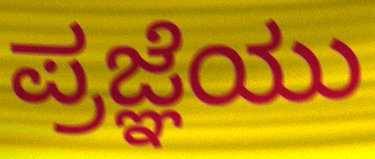
ಪ್ರಜ್ಞೆಯು